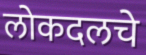
लोकदलचे